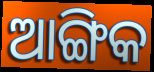
ଆଙ୍ଗିକ